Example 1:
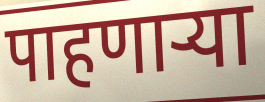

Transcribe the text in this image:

पाहणाऱ्या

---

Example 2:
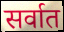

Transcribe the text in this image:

सर्वात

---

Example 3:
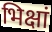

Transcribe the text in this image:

भिक्षां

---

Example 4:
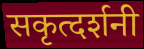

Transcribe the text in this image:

सकृत्दर्शनी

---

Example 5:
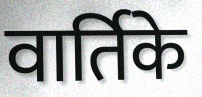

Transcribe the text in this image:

वार्तिके